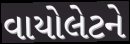
વાયોલેટને